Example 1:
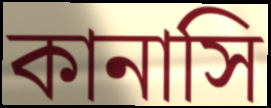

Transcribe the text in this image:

কানাসি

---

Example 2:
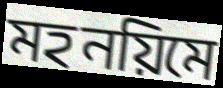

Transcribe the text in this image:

মহনয়িমে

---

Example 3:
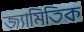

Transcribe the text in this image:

জ্যামিতিক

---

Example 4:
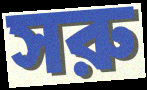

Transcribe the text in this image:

সরু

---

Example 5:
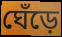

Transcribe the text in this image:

ঘেঁড়ে